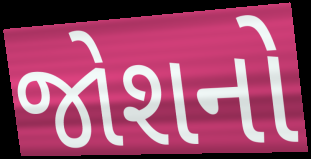
જોશનો